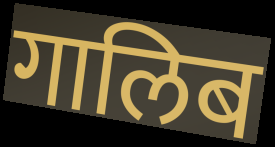
गालिब